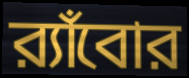
র‍্যাঁবোর